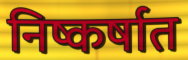
निष्कर्षात